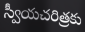
స్వీయచరిత్రకు